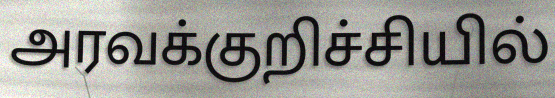
அரவக்குறிச்சியில்